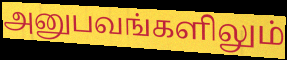
அனுபவங்களிலும்